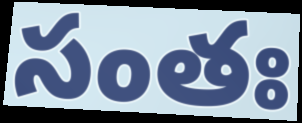
సంతః